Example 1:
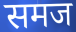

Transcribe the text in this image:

समज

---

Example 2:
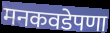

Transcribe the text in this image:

मनकवडेपणा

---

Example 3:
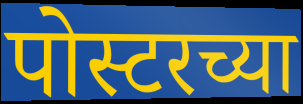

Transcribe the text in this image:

पोस्टरच्या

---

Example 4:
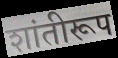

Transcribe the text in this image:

शांतीरूप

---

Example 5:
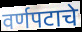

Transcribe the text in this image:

वर्णपटाचे